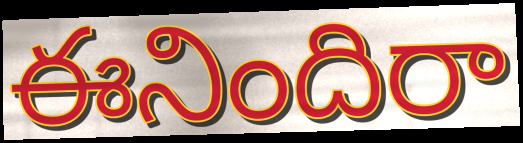
ఈనిందిరా